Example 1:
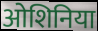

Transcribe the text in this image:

ओशिनिया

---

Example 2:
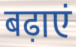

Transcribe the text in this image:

बढ़ाएं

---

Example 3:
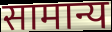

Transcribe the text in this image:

सामान्य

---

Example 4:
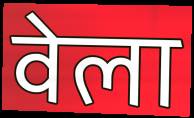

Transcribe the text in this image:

वेला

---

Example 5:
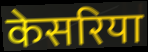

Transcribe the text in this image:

केसरिया